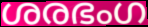
ശരഭംഗ